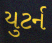
યુટર્ન